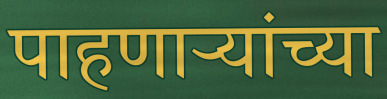
पाहणार्‍यांच्या